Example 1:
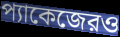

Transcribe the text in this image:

প্যাকেজেরও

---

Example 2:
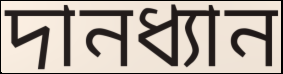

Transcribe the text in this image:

দানধ্যান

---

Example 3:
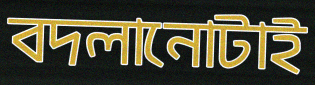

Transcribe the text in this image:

বদলানোটাই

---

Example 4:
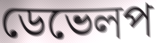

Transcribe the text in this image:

ডেভেলপ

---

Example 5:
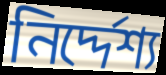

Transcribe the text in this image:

নির্দ্দেশ্য